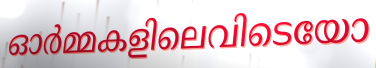
ഓർമ്മകളിലെവിടെയോ